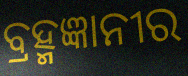
ବ୍ରହ୍ମଜ୍ଞାନୀର